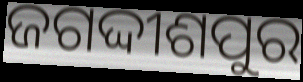
ଜଗଦ୍ଦୀଶପୁର